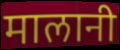
मालानी